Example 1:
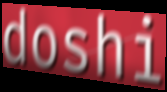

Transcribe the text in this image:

doshi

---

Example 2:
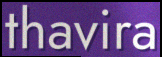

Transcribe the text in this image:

thavira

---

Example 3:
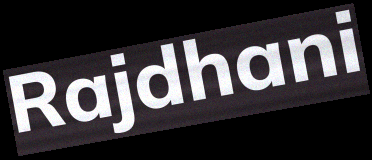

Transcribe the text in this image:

Rajdhani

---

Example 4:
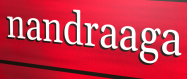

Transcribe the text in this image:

nandraaga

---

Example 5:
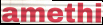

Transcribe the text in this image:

amethi